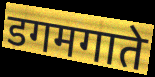
डगमगाते